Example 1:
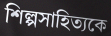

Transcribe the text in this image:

শিল্পসাহিত্যকে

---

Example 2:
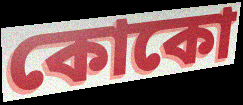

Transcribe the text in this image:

কোকো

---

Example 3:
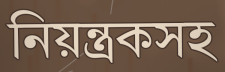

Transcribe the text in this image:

নিয়ন্ত্রকসহ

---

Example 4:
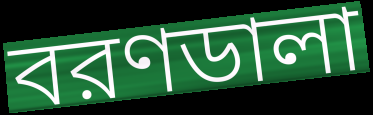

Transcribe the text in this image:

বরণডালা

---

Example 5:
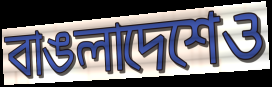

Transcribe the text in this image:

বাঙলাদেশেও